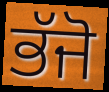
ਭੱਜੋ